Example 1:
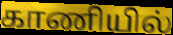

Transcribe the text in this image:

காணியில்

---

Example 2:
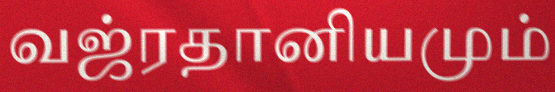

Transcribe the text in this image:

வஜ்ரதானியமும்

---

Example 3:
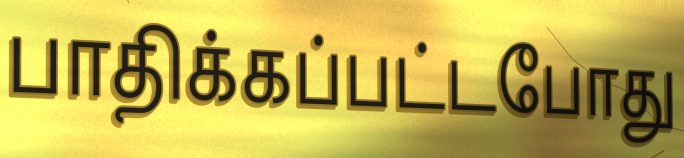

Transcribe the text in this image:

பாதிக்கப்பட்டபோது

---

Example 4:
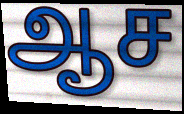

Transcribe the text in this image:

ஆச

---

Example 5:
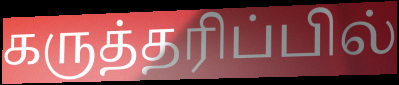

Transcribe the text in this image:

கருத்தரிப்பில்